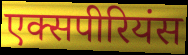
एक्सपीरियंस